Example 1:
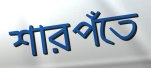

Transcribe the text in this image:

শারপঁতে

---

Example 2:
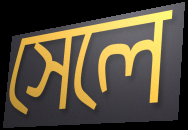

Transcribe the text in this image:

সেলে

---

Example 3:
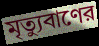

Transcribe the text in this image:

মৃত্যুবাণের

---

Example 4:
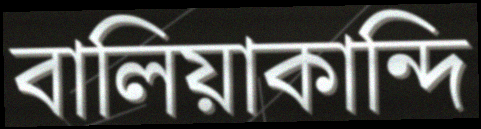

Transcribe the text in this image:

বালিয়াকান্দি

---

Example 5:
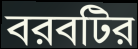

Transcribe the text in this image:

বরবটির